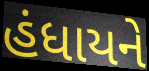
હંધાયને